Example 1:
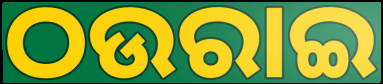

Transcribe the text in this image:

ଠଉରାଇ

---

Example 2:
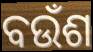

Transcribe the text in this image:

ବଉଁଶ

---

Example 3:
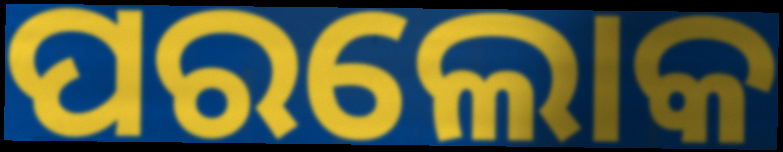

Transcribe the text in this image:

ପରଲୋକ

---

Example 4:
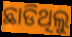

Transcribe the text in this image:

ଛାଡିଥିଲୁ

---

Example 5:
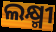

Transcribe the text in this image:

ଲକ୍ଷ୍ମୀ